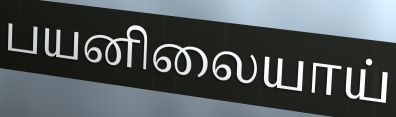
பயனிலையாய்